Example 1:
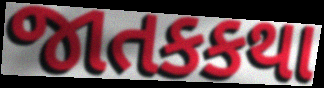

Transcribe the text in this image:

જાતકકથા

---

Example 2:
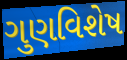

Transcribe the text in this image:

ગુણવિશેષ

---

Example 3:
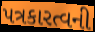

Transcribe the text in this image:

પત્રકારત્વની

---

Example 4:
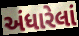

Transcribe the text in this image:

અંધારેલાં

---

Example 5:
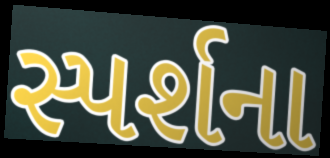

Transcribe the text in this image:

સ્પર્શના